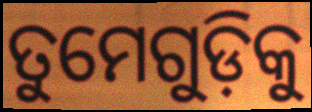
ତୁମେଗୁଡ଼ିକୁ